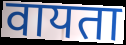
वायता